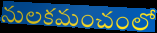
నులకమంచంలో